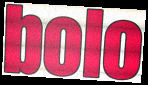
bolo